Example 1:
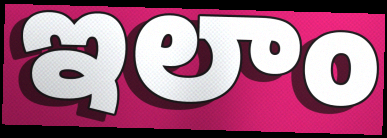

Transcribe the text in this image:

ఇలాం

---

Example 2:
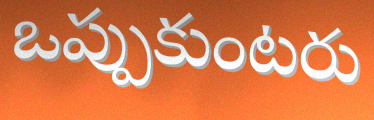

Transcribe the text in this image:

ఒప్పుకుంటరు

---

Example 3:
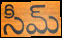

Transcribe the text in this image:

సీమ్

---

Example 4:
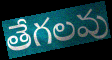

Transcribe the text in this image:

తేగలవు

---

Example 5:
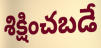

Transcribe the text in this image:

శిక్షించబడే